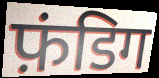
फ़ंडिग